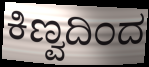
ಕಿಣ್ವದಿಂದ